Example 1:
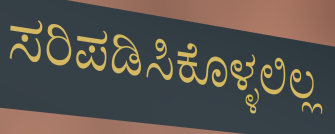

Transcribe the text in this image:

ಸರಿಪಡಿಸಿಕೊಳ್ಳಲಿಲ್ಲ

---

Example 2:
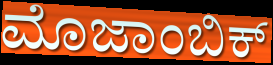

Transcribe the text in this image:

ಮೊಜಾಂಬಿಕ್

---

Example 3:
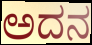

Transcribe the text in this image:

ಅದನ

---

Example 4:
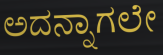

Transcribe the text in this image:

ಅದನ್ನಾಗಲೇ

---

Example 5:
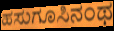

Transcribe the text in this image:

ಹಸುಗೂಸಿನಂಥ